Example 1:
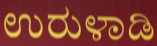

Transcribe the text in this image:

ಉರುಳಾಡಿ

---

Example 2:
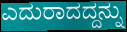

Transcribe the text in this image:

ಎದುರಾದದ್ದನ್ನು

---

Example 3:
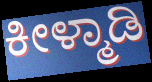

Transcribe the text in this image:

ಕೀಳ್ಮಾಡಿ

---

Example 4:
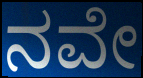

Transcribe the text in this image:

ನವೇ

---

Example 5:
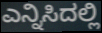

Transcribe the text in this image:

ಎನ್ನಿಸಿದಲ್ಲಿ